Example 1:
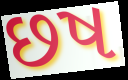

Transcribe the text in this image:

છષ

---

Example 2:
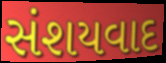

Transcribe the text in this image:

સંશયવાદ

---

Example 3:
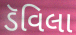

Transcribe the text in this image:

ડૅવિલા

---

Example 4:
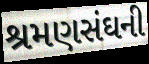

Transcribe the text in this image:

શ્રમણસંઘની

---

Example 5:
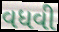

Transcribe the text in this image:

વધવી